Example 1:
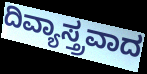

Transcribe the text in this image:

ದಿವ್ಯಾಸ್ತ್ರವಾದ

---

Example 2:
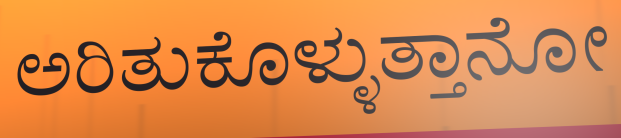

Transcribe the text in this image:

ಅರಿತುಕೊಳ್ಳುತ್ತಾನೋ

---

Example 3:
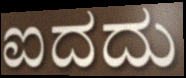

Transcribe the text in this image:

ಐದದು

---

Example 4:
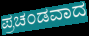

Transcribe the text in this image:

ಪ್ರಚಂಡವಾದ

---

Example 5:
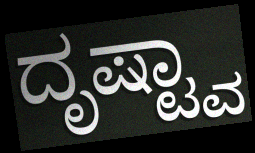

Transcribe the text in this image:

ದೃಷ್ಟ್ವಾ